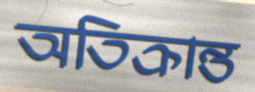
অতিক্রান্ত